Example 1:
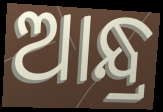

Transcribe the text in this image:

ଆନ୍ଧ୍ର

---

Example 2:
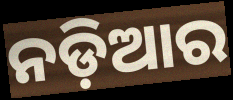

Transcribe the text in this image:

ନଡ଼ିଆର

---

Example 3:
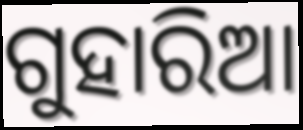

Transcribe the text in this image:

ଗୁହାରିଆ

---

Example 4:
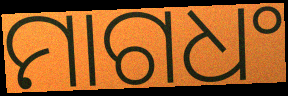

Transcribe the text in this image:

ମାଗଧଂ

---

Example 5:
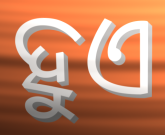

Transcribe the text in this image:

ହୁଏ